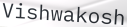
Vishwakosh